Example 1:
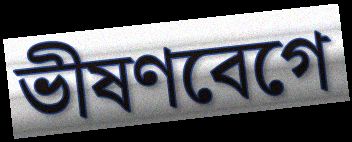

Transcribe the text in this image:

ভীষণবেগে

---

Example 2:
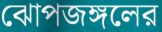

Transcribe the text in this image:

ঝোপজঙ্গলের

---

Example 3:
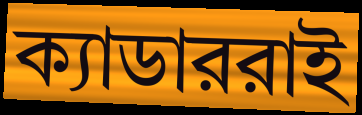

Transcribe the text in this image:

ক্যাডাররাই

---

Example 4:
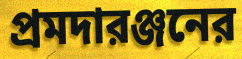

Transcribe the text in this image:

প্রমদারঞ্জনের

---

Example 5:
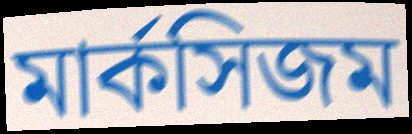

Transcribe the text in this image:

মার্কসিজম